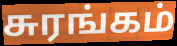
சுரங்கம்